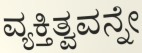
ವ್ಯಕ್ತಿತ್ವವನ್ನೇ